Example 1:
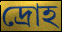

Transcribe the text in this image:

দ্রোহ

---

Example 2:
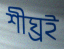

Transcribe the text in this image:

শীঘ্রই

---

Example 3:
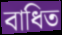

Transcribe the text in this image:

বাধিত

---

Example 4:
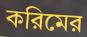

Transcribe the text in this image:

করিমের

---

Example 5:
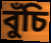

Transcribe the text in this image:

বুঁচি